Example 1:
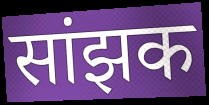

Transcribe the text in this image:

सांझक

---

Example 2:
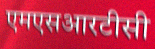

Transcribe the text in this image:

एमएसआरटीसी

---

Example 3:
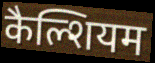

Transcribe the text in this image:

कैल्शियम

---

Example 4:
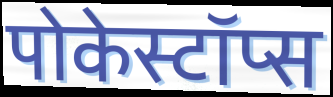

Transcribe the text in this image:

पोकेस्टॉप्स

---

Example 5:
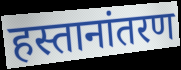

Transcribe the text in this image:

हस्तानांतरण